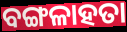
ବଙ୍ଗଳାହତା